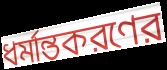
ধর্মান্তকরণের